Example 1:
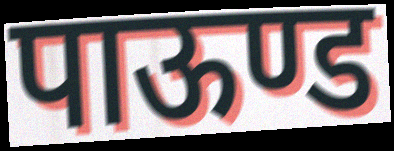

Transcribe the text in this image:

पाऊण्ड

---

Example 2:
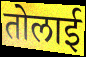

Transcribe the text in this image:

तोलाई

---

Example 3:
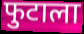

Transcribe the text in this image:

फुटाला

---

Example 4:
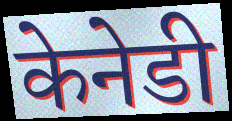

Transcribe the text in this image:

केनेडी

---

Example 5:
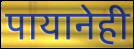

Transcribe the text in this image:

पायानेही